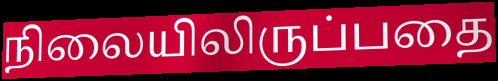
நிலையிலிருப்பதை